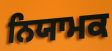
ਨਿਯਾਮਕ